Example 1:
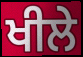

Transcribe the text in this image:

ਖੀਲੇ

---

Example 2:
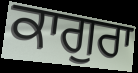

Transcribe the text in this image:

ਕਾਗੁਰਾ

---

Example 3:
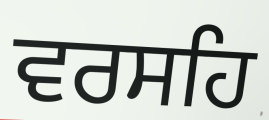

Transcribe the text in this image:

ਵਰਸਹਿ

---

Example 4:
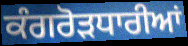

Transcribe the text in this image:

ਕੰਗਰੋੜਧਾਰੀਆਂ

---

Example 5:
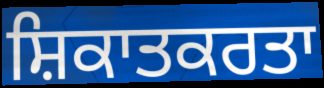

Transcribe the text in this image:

ਸ਼ਿਕਾਤਕਰਤਾ